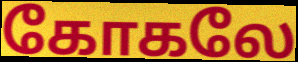
கோகலே